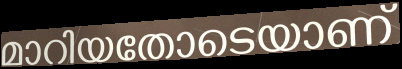
മാറിയതോടെയാണ്